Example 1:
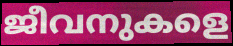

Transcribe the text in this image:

ജീവനുകളെ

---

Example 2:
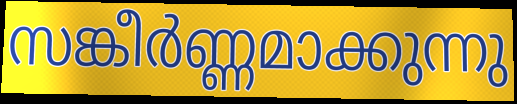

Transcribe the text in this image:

സങ്കീർണ്ണമാക്കുന്നു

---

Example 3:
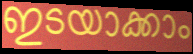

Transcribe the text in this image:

ഇടയാക്കാം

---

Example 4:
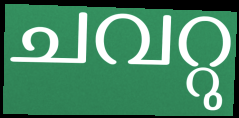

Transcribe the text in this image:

ചവറ്റു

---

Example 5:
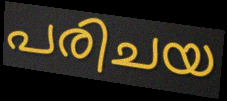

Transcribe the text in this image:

പരിചയ